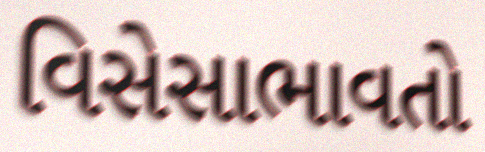
વિસેસાભાવતો